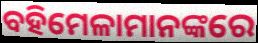
ବହିମେଳାମାନଙ୍କରେ